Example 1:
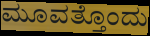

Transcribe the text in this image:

ಮೂವತ್ತೊಂದು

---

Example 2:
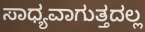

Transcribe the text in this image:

ಸಾಧ್ಯವಾಗುತ್ತದಲ್ಲ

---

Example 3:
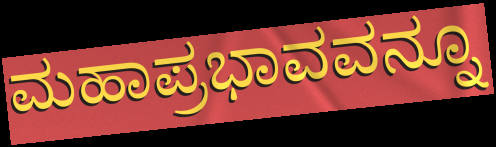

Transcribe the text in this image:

ಮಹಾಪ್ರಭಾವವನ್ನೂ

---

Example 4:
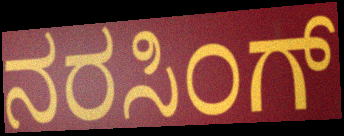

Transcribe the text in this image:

ನರಸಿಂಗ್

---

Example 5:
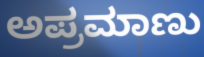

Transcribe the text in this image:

ಅಪ್ರಮಾಣು